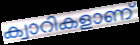
ക്വാറികളാണ്